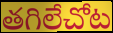
తగిలేచోట